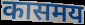
कासमय